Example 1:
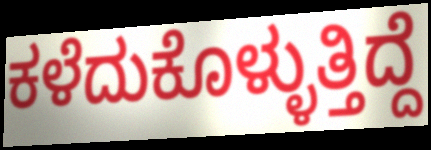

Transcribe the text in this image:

ಕಳೆದುಕೊಳ್ಳುತ್ತಿದ್ದೆ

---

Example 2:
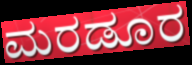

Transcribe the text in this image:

ಮರಡೂರ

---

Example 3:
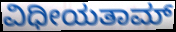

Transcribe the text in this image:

ವಿಧೀಯತಾಮ್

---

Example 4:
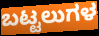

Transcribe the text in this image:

ಬಟ್ಟಲುಗಳ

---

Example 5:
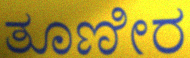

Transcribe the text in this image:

ತೂಣೀರ